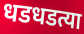
धडधडत्या